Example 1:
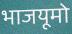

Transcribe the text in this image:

भाजयूमो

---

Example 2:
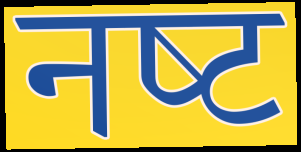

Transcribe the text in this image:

नष्‍ट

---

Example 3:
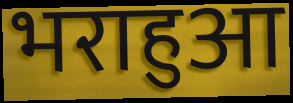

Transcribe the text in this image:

भराहुआ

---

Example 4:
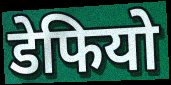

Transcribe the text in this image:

डेफियो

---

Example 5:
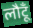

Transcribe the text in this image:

लौटूँ